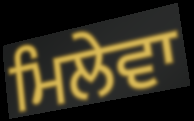
ਮਿਲੇਵਾ